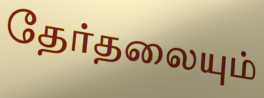
தேர்தலையும்